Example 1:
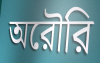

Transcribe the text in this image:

অরৌরি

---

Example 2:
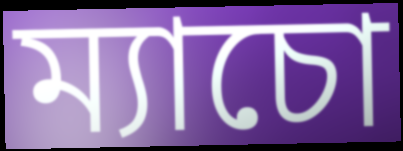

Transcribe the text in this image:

ম্যাচো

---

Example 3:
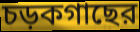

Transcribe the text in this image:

চড়কগাছের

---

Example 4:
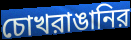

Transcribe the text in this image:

চোখরাঙানির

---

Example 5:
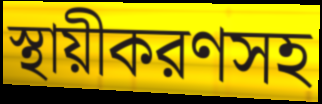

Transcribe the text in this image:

স্থায়ীকরণসহ